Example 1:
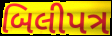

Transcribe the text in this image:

બિલીપત્ર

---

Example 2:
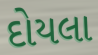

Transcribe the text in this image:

દોયલા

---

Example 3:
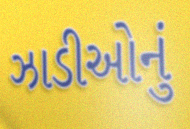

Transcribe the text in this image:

ઝાડીઓનું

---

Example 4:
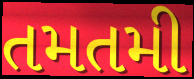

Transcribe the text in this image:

તમતમી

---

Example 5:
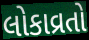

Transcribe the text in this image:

લોકાવ્રતો